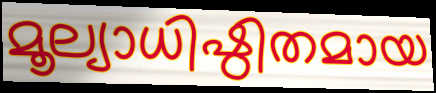
മൂല്യാധിഷ്ഠിതമായ